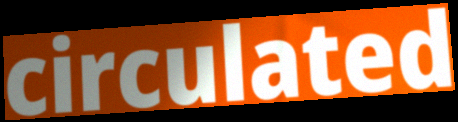
circulated